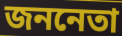
জননেতা